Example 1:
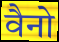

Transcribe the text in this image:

वैनो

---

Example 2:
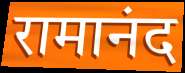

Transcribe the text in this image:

रामानंद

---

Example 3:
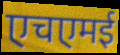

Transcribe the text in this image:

एचएमई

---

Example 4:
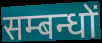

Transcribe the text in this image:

सम्बन्धों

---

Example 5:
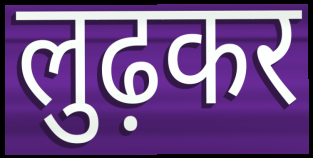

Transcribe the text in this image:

लुढ़कर